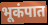
भूकंपात